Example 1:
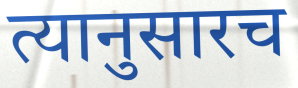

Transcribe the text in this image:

त्यानुसारच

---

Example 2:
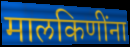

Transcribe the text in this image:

मालकिणींना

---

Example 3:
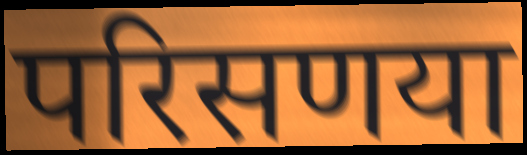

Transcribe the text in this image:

परिसणया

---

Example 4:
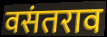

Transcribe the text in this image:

वसंतराव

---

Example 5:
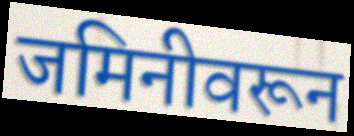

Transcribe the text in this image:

जमिनीवरून